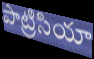
పాట్రిసియా